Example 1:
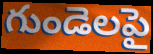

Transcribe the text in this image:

గుండెలపై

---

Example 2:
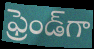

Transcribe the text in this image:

ఫ్రెండ్‌గా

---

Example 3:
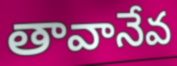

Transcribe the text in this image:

తావానేవ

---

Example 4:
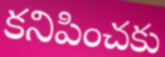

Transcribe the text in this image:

కనిపించకు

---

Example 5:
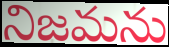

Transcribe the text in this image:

నిజమను